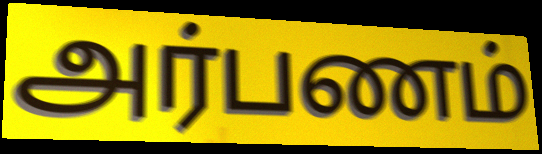
அர்பணம்